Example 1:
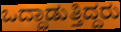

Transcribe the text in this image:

ಒದ್ದಾಡುತ್ತಿದ್ದರು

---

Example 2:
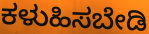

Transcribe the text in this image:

ಕಳುಹಿಸಬೇಡಿ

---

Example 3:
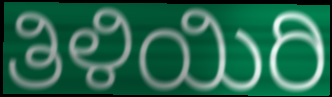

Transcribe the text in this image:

ತಿಳಿಯಿರಿ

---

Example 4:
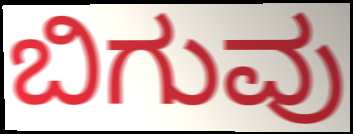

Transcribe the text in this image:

ಬಿಗುವು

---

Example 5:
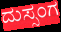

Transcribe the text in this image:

ದುಸ್ಸಂಗ